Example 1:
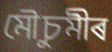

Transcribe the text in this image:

মৌচুমীৰ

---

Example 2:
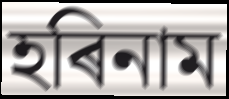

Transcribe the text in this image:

হৰিনাম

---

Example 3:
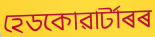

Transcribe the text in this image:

হেডকোৱাৰ্টাৰৰ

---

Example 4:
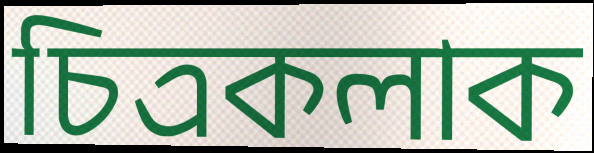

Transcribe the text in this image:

চিত্ৰকলাক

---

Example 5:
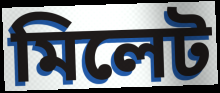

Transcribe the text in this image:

মিলেট